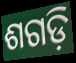
ଶଗଡ଼ି